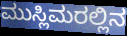
ಮುಸ್ಲಿಮರಲ್ಲಿನ